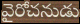
వైరోచనుడు